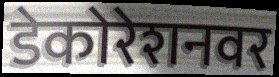
डेकोरेशनवर